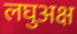
लघुअक्ष